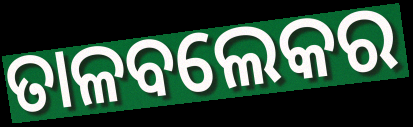
ତାଳବଲେକର